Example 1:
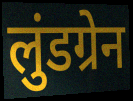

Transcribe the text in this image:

लुंडग्रेन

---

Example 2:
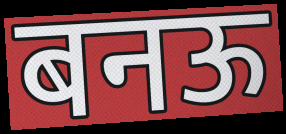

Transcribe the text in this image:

बनऊ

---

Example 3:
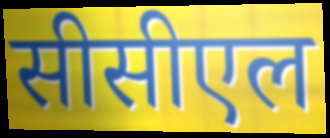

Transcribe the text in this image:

सीसीएल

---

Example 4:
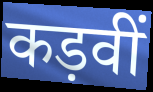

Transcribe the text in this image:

कड़वीं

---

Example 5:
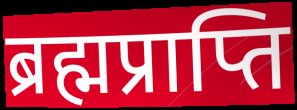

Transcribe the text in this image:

ब्रह्मप्राप्ति